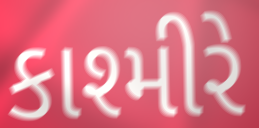
કાશ્મીરે